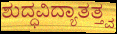
ಶುದ್ಧವಿದ್ಯಾತತ್ತ್ವ